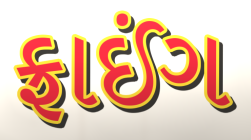
ફ્રાઈંગ